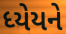
ધ્યેયને